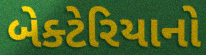
બેક્ટેરિયાનો